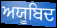
ਅਯੂਬਿਦ